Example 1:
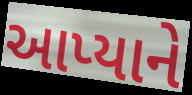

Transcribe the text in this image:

આપ્યાને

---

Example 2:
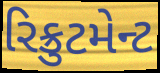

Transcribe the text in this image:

રિક્રુટમેન્ટ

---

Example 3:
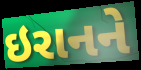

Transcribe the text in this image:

ઇરાનને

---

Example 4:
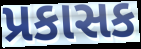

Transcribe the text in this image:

પ્રકાસક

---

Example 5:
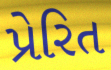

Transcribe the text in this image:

પ્રેરિત